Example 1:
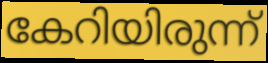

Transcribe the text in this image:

കേറിയിരുന്ന്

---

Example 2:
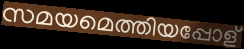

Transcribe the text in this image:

സമയമെത്തിയപ്പോള്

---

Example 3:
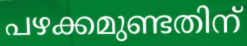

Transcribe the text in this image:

പഴക്കമുണ്ടതിന്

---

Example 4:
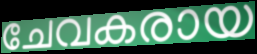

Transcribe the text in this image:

ചേവകരായ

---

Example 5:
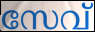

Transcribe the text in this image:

സേവ്